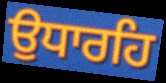
ਉਧਾਰਹਿ